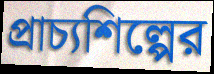
প্রাচ্যশিল্পের